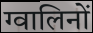
ग्वालिनों